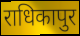
राधिकापुर